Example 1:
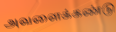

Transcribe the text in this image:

அவளைக்கண்டு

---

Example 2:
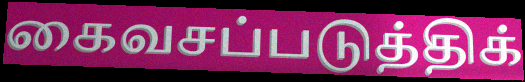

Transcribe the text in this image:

கைவசப்படுத்திக்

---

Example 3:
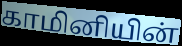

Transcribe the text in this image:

காமினியின்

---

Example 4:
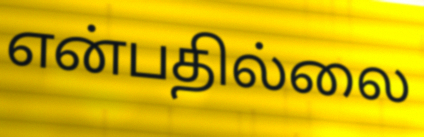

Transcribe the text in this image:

என்பதில்லை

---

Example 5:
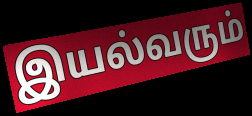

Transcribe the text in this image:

இயல்வரும்